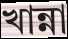
খান্না